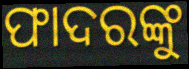
ଫାଦରଙ୍କୁ